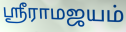
ஸ்ரீராமஜயம்